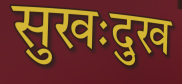
सुखःदुख